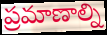
ప్రమాణాల్ని